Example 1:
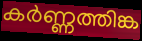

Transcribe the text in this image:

കർണ്ണത്തിങ്ക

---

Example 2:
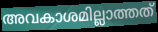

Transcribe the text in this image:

അവകാശമില്ലാത്തത്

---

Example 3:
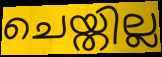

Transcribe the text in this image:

ചെയ്തില്ല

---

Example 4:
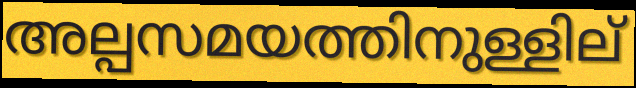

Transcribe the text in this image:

അല്പസമയത്തിനുള്ളില്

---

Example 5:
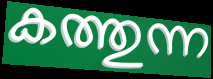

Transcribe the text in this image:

കത്തുന്ന